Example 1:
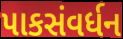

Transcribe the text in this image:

પાકસંવર્ધન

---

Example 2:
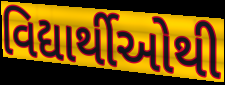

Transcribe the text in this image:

વિદ્યાર્થીઓથી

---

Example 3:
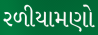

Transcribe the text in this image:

રળીયામણો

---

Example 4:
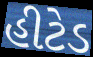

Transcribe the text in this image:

હીટેડ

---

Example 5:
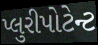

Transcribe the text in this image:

પ્લુરીપોટેન્ટ